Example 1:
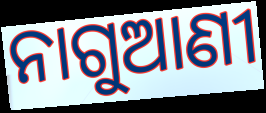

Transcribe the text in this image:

ନାଗୁଆଣୀ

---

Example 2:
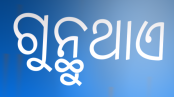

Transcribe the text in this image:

ଗୁନ୍ଥୁଥାଏ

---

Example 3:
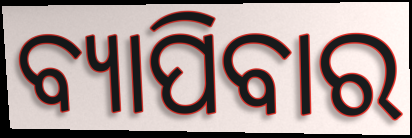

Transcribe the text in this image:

ବ୍ୟାପିବାର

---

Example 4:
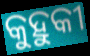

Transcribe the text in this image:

କୁହୁକୀ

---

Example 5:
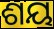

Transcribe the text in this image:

ଶୟ